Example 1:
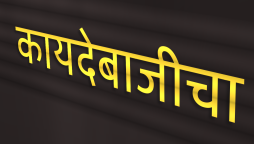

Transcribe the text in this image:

कायदेबाजीचा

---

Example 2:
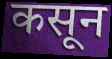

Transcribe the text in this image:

कसून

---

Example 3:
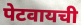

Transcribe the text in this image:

पेटवायची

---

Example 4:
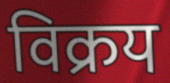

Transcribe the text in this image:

विक्रय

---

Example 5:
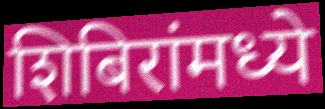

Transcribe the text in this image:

शिबिरांमध्ये